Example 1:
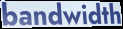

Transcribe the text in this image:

bandwidth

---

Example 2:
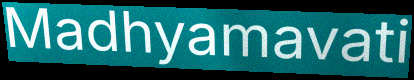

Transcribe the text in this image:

Madhyamavati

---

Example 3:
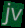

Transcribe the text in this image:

jv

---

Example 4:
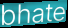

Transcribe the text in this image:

bhate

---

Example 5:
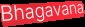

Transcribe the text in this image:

Bhagavana